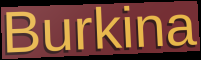
Burkina